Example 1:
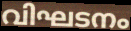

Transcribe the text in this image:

വിഘടനം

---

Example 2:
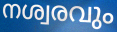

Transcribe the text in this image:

നശ്വരവും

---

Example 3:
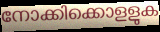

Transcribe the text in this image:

നോക്കിക്കൊളളുക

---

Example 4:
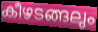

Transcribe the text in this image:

കീഴടങ്ങലും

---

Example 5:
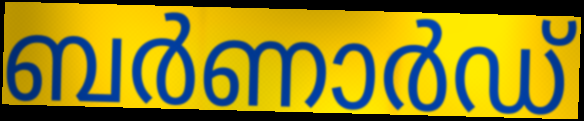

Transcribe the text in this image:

ബർണാർഡ്